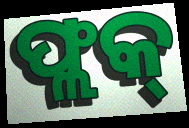
ଫ୍ଲକ୍